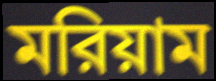
মরিয়াম